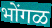
भोंगळ